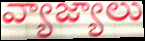
వ్యాజ్యాలు